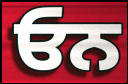
ਓਨ